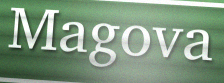
Magova